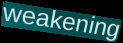
weakening